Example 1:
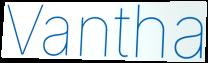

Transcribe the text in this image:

Vantha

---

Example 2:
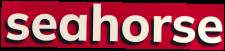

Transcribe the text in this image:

seahorse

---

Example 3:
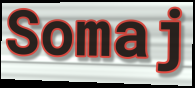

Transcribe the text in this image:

Somaj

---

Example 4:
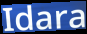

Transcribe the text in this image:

Idara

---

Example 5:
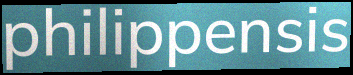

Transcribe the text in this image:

philippensis